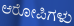
ಆರೋಪಿಗಳು